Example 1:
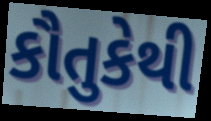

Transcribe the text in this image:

કૌતુકેથી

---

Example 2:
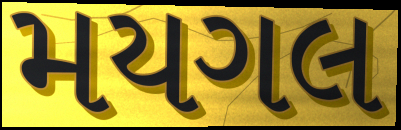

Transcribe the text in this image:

મયગલ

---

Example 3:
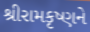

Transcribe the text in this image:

શ્રીરામકૃષ્ણને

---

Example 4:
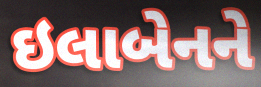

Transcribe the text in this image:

ઇલાબેનને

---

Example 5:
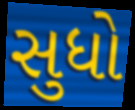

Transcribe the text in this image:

સુધો